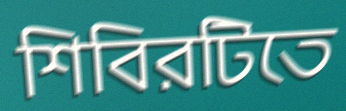
শিবিরটিতে